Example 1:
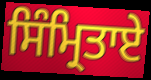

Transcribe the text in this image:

ਸਿੰਮ੍ਰਿਤਾਏ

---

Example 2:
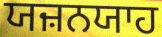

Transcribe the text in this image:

ਯਜ਼ਨਯਾਹ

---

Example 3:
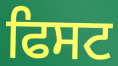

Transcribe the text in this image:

ਫਿਸਟ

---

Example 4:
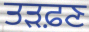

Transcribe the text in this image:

ਤੜਫ਼ਣ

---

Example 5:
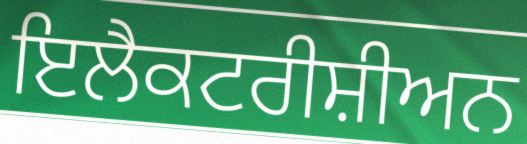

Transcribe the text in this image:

ਇਲੈਕਟਰੀਸ਼ੀਅਨ